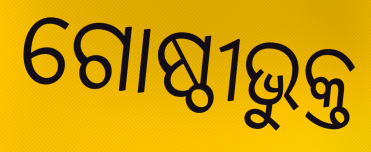
ଗୋଷ୍ଠୀଭୁକ୍ତ